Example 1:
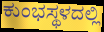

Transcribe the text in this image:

ಕುಂಭಸ್ಥಳದಲ್ಲಿ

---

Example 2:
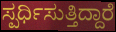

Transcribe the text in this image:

ಸ್ಪರ್ಧಿಸುತ್ತಿದ್ದಾರೆ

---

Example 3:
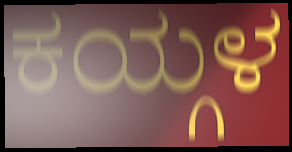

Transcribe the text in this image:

ಕಯ್ಗಳ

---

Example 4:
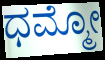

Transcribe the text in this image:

ಧಮ್ಮೋ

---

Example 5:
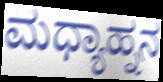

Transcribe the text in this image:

ಮಧ್ಯಾಹ್ನನ